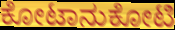
ಕೋಟಾನುಕೋಟಿ